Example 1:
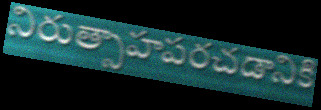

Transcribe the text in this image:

నిరుత్సాహపరచడానికి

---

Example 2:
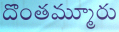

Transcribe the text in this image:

దొంతమ్మూరు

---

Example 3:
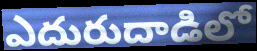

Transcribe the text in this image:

ఎదురుదాడిలో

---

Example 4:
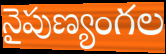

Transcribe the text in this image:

నైపుణ్యంగల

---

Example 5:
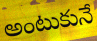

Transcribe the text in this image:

అంటుకునే